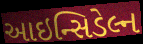
આઇન્સિડેલ્ન